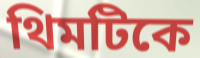
থিমটিকে